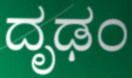
ದೃಢಂ